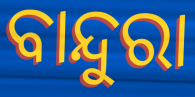
ବାନ୍ଦୁରା